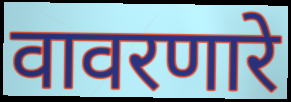
वावरणारे